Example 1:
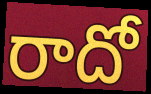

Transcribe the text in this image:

రాదో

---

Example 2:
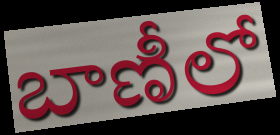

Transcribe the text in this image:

బాణీలో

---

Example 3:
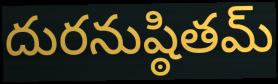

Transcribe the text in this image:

దురనుష్ఠితమ్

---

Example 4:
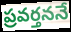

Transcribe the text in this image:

ప్రవర్తననే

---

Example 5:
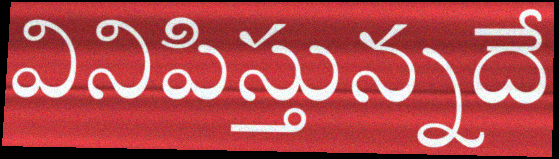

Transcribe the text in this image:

వినిపిస్తున్నదే